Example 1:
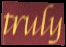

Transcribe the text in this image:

truly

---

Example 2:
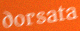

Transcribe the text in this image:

dorsata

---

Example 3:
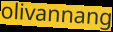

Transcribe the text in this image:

olivannang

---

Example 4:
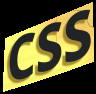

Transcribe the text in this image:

CSS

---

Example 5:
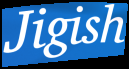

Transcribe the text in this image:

Jigish